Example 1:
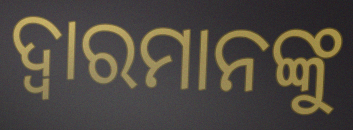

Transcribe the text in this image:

ଦ୍ୱାରମାନଙ୍କୁ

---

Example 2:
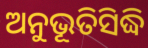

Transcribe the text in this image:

ଅନୁଭୂତିସିଦ୍ଧି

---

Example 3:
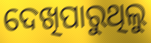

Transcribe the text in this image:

ଦେଖିପାରୁଥିଲୁ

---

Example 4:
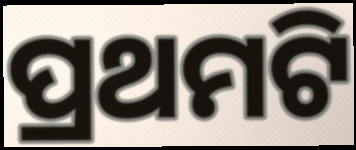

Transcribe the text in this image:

ପ୍ରଥମଟି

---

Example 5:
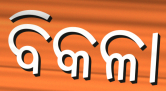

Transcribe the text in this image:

ବିକଳା